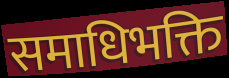
समाधिभक्ति